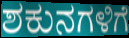
ಶಕುನಗಳಿಗೆ